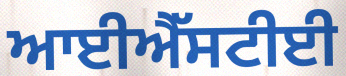
ਆਈਐੱਸਟੀਈ